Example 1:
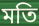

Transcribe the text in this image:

মতি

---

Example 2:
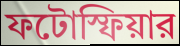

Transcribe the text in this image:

ফটোস্ফিয়ার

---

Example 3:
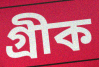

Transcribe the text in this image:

গ্রীক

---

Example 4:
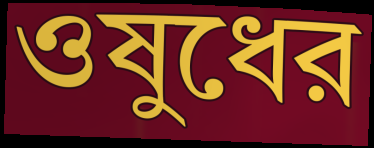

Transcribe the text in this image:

ওষুধের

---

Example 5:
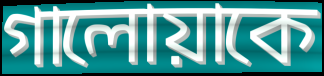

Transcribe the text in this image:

গালোয়াকে